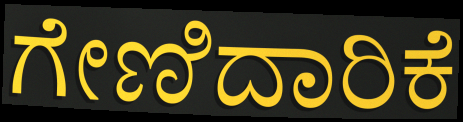
ಗೇಣಿದಾರಿಕೆ